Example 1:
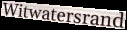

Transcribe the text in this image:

Witwatersrand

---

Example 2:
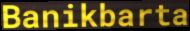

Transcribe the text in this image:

Banikbarta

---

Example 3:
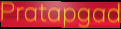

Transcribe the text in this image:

Pratapgad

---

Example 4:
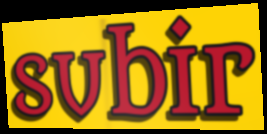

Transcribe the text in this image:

subir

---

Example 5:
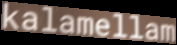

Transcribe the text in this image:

kalamellam